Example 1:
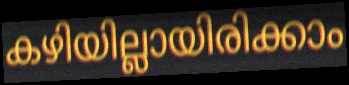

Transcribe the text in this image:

കഴിയില്ലായിരിക്കാം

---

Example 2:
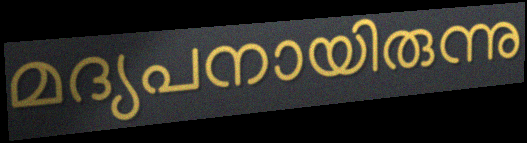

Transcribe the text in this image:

മദ്യപനായിരുന്നു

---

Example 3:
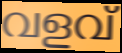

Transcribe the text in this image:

വളവ്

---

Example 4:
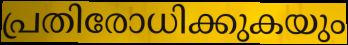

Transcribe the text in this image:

പ്രതിരോധിക്കുകയും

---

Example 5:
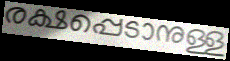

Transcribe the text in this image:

രക്ഷപ്പെടാനുള്ള